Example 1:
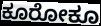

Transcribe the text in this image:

ಕೂರೋಕೂ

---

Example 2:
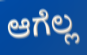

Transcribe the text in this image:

ಆಗೆಲ್ಲ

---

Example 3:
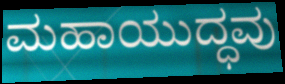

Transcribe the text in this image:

ಮಹಾಯುದ್ಧವು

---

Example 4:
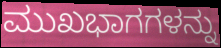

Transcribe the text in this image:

ಮುಖಭಾಗಗಳನ್ನು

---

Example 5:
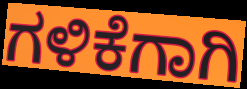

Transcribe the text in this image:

ಗಳಿಕೆಗಾಗಿ